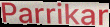
Parrikar